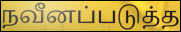
நவீனப்படுத்த